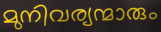
മുനിവര്യന്മാരും